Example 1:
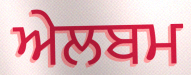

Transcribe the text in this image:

ਅੇਲਬਮ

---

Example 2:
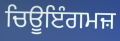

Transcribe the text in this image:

ਚਿਊਇੰਗਮਜ਼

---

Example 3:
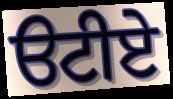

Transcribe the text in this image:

ੳਟੀਏ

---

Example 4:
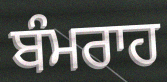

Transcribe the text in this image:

ਬੰਮਰਾਹ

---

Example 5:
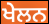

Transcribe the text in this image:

ਖੇਲਨ